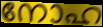
നോഹ